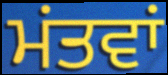
ਮਂਤਵਾਂ